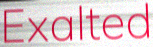
Exalted